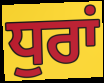
ਧੁਰਾਂ